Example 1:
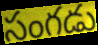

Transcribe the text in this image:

సంగడు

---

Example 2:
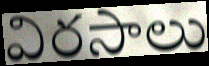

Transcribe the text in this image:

విరసాలు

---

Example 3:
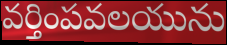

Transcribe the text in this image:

వర్తింపవలయును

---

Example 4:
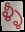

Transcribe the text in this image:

ళ్ళీ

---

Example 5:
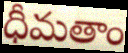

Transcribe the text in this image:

ధీమతాం